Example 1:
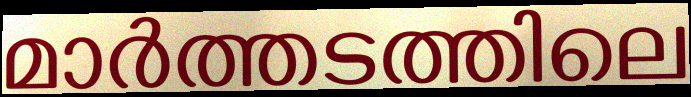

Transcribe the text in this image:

മാർത്തടത്തിലെ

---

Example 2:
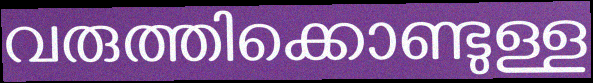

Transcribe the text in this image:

വരുത്തിക്കൊണ്ടുള്ള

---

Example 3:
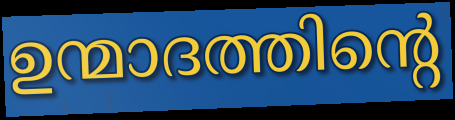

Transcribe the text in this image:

ഉന്മാദത്തിന്റെ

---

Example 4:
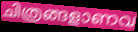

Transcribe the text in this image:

ചിത്രങ്ങളാണവ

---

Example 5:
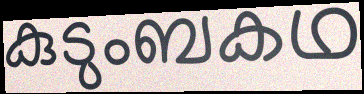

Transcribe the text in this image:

കുടുംബകഥ